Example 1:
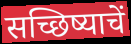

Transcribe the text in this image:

सच्छिष्याचें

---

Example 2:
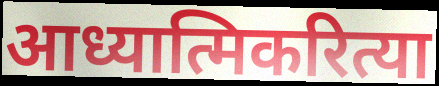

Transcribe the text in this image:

आध्यात्मिकरित्या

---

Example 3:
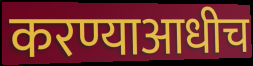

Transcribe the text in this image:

करण्याआधीच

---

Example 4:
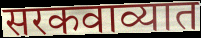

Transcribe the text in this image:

सरकवाव्यात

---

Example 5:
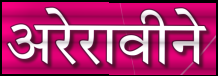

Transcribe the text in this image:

अरेरावीने